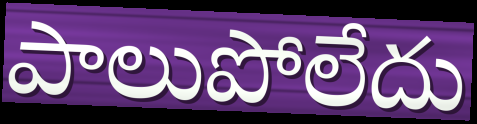
పాలుపోలేదు